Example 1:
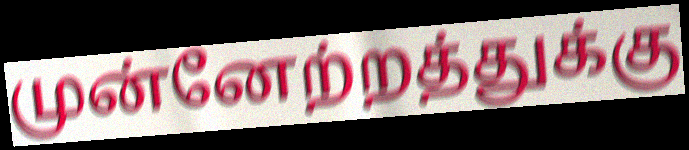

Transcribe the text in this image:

முன்னேற்றத்துக்கு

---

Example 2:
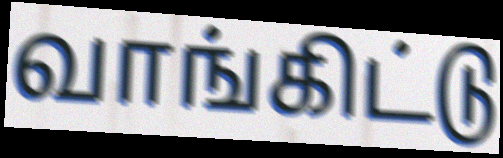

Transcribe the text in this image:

வாங்கிட்டு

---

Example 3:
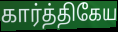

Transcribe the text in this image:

கார்த்திகேய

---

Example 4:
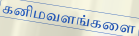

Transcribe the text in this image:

கனிமவளங்களை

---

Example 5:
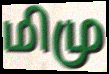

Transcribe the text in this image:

மிமு